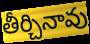
తీర్చినావు